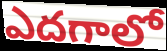
ఎదగాలో